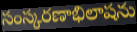
సంస్కరణాభిలాషను